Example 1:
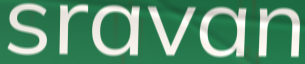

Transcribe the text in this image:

sravan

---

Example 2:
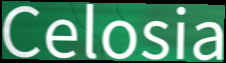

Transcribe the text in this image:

Celosia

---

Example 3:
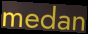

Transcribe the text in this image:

medan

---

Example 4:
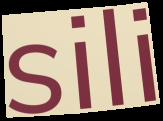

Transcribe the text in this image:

sili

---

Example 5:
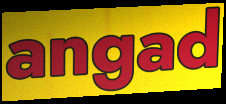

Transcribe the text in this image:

angad